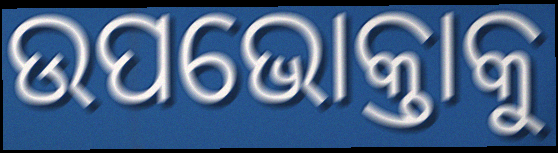
ଉପଭୋକ୍ତାକୁ